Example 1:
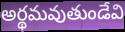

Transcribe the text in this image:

అర్థమవుతుండేవి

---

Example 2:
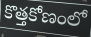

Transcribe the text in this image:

కొత్తకోణంలో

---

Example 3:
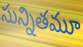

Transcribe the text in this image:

సున్నితమూ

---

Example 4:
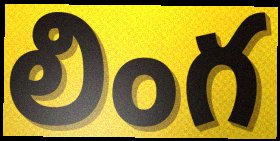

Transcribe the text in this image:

లింగ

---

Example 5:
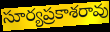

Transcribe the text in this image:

సూర్యప్రకాశరావు